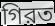
গিরত